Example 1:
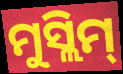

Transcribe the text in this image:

ମୁସ୍ଲିମ୍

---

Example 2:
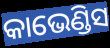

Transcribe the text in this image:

କାଭେଣ୍ଡିସ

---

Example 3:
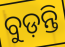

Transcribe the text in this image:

ବୁଡ଼ନ୍ତି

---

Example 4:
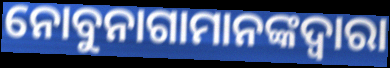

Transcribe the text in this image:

ନୋବୁନାଗାମାନଙ୍କଦ୍ୱାରା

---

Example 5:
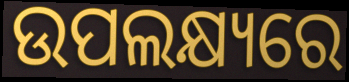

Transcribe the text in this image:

ଉପଲକ୍ଷ୍ୟରେ